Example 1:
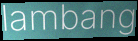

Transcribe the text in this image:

lambang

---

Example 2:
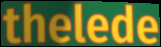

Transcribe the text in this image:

thelede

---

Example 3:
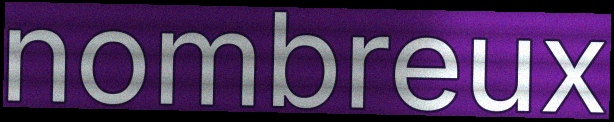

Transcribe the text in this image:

nombreux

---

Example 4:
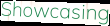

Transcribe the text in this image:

Showcasing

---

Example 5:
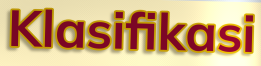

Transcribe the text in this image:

Klasifikasi